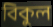
বিকুল